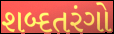
શબ્દતરંગો